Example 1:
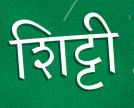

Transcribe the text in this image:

शिट्टी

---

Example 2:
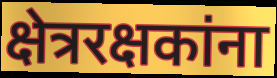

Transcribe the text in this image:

क्षेत्ररक्षकांना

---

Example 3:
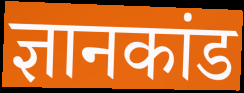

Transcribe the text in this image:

ज्ञानकांड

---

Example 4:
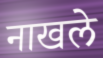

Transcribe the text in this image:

नाखले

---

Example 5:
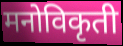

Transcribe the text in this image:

मनोविकृती